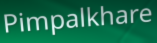
Pimpalkhare